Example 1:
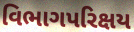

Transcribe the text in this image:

વિભાગપરિક્ષય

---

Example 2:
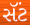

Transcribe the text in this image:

સૅંટ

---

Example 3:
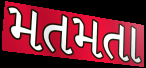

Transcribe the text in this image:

મતમતા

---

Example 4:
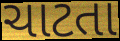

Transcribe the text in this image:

ચાટતા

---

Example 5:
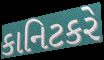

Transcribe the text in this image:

કાનિટકરે